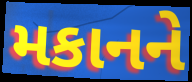
મકાનને